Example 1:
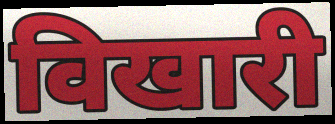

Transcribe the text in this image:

विखारी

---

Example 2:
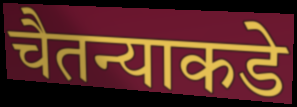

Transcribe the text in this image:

चैतन्याकडे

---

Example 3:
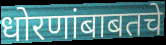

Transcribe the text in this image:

धोरणांबाबतचे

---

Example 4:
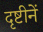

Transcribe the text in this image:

दृष्टीनें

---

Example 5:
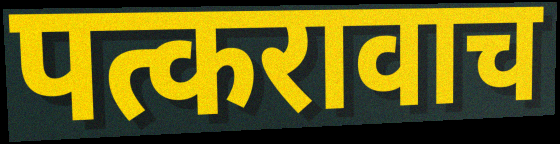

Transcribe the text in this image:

पत्करावाच